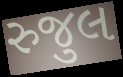
રુજુલ